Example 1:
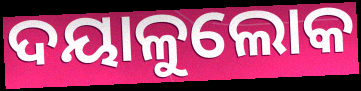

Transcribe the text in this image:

ଦୟାଳୁଲୋକ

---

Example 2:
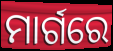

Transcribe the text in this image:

ମାର୍ଗରେ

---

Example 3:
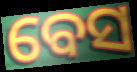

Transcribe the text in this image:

ବେସ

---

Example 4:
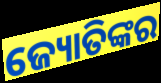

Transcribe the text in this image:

ଜ୍ୟୋତିଙ୍କର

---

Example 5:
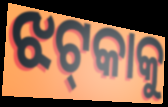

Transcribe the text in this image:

ଝଟ୍‌କାକୁ